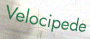
Velocipede